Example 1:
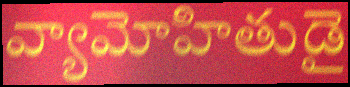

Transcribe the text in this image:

వ్యామోహితుడై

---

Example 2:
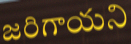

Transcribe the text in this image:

జరిగాయని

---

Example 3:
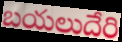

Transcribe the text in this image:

బయలుదేరి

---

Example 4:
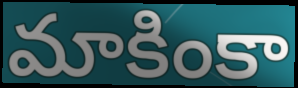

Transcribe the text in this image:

మాకింకా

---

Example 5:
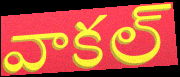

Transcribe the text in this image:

వాకల్